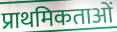
प्राथमिकताओं